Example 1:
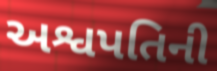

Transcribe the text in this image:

અશ્વપતિની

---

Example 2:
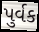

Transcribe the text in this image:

પુર્વક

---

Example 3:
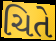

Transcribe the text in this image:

ચિતે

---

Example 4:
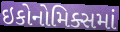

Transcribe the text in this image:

ઇકોનોમિક્સમાં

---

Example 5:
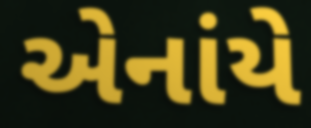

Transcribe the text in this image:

એનાંયે